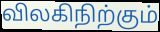
விலகிநிற்கும்